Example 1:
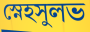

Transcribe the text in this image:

স্নেহসুলভ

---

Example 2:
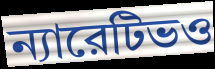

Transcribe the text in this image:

ন্যারেটিভও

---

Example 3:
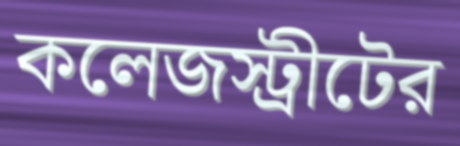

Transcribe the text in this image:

কলেজস্ট্রীটের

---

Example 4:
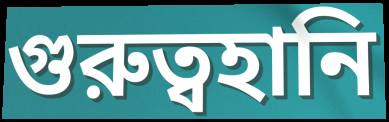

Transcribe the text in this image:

গুরুত্বহানি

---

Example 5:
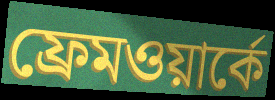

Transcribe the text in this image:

ফ্রেমওয়ার্কে